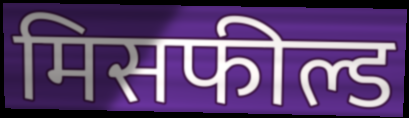
मिसफील्ड